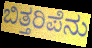
ಬಿತ್ತರಿಪೆನು